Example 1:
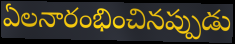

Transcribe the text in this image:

ఏలనారంభించినప్పుడు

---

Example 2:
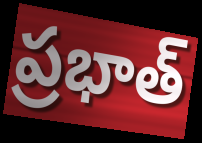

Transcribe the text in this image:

ప్రభాత్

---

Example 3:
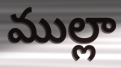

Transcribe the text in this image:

ముల్లా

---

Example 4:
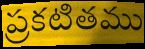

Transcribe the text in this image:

ప్రకటితము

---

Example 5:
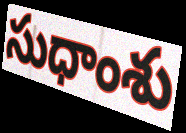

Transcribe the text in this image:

సుధాంశు